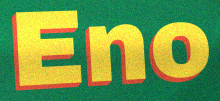
Eno